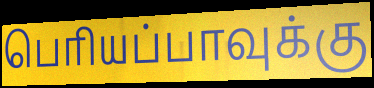
பெரியப்பாவுக்கு